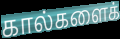
கால்களைக்